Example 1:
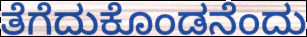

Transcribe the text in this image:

ತೆಗೆದುಕೊಂಡನೆಂದು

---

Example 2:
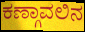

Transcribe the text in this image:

ಕಣ್ಗಾವಲಿನ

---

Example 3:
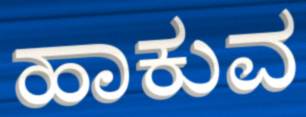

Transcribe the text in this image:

ಹಾಕುವ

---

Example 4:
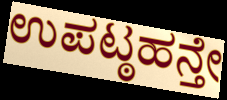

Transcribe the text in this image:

ಉಪಟ್ಠಹನ್ತೇ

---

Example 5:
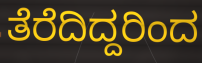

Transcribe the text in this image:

ತೆರೆದಿದ್ದರಿಂದ